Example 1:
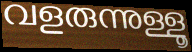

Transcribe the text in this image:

വളരുന്നുള്ളൂ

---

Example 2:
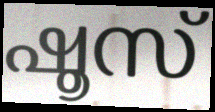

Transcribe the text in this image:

ഷൂസ്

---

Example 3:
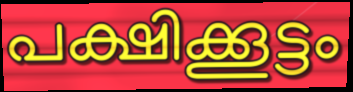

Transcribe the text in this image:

പക്ഷിക്കൂട്ടം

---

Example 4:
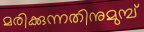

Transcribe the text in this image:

മരിക്കുന്നതിനുമുമ്പ്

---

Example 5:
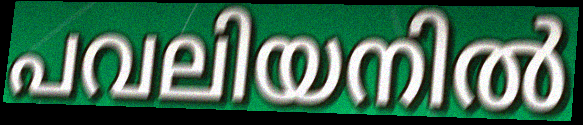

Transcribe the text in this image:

പവലിയനിൽ